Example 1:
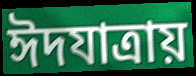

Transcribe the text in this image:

ঈদযাত্রায়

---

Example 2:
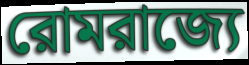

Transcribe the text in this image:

রোমরাজ্যে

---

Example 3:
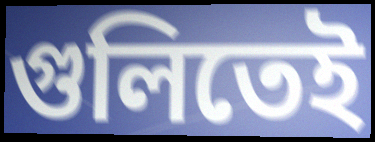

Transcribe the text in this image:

গুলিতেই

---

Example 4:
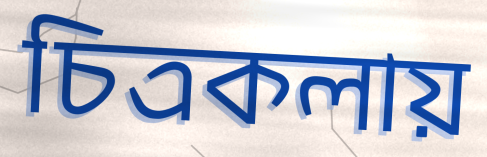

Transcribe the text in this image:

চিত্রকলায়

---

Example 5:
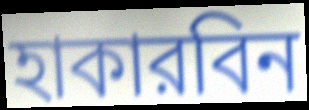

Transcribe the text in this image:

হাকারবিন